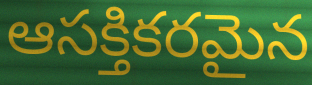
ఆసక్తికరమైన